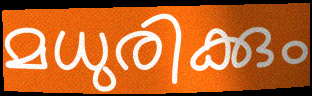
മധുരിക്കും